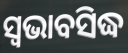
ସ୍ଵଭାବସିଦ୍ଧ